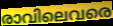
രാവിലെവരെ